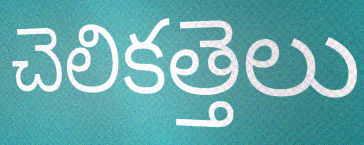
చెలికత్తెలు